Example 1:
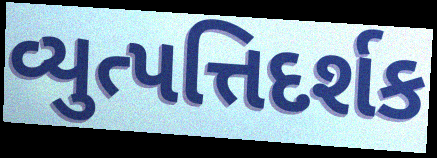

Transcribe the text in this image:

વ્યુત્પત્તિદર્શક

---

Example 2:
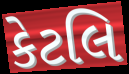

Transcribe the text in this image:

કેટલિ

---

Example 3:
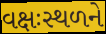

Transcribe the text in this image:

વક્ષઃસ્થળને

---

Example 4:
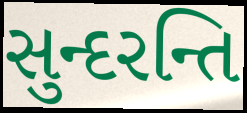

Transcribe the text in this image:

સુન્દરન્તિ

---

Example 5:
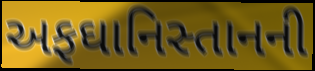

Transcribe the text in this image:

અફઘાનિસ્તાનની